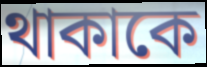
থাকাকে